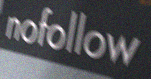
nofollow